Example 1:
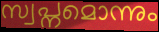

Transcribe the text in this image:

സ്വപ്നമൊന്നും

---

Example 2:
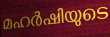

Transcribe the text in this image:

മഹർഷിയുടെ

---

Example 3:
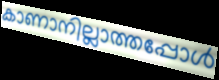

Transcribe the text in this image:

കാണാനില്ലാത്തപ്പോൾ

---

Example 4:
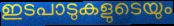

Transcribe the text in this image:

ഇടപാടുകളുടെയും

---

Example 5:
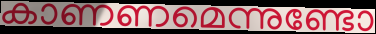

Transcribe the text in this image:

കാണണമെന്നുണ്ടോ